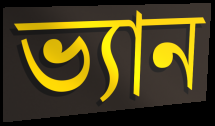
ভ্যান